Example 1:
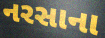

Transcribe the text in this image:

નરસાના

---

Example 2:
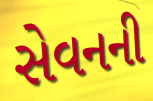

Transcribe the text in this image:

સેવનની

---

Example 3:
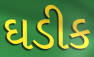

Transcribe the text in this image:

ઘડીક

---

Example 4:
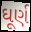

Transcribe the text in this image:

ઘૂર્ણ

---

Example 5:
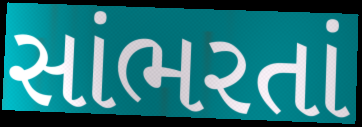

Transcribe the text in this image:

સાંભરતાં